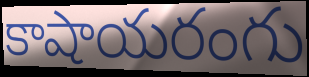
కాషాయరంగు